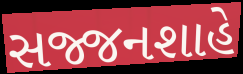
સજ્જનશાહે